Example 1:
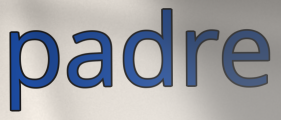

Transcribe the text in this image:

padre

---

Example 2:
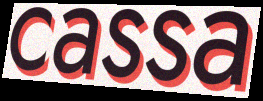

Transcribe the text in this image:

cassa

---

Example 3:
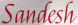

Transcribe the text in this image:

Sandesh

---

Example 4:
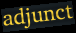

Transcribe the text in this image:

adjunct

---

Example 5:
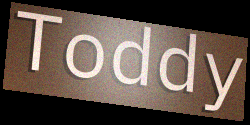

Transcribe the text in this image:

Toddy